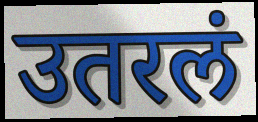
उतरलं